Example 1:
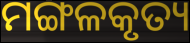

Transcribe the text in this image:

ମଙ୍ଗଳକୃତ୍ୟ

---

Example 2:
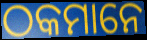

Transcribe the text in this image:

ଠକମାନେ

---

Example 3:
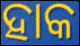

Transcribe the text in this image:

ହାକ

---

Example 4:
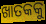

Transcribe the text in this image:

ଖାତକକୁ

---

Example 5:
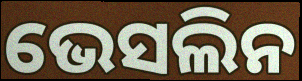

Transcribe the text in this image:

ଭେସଲିନ